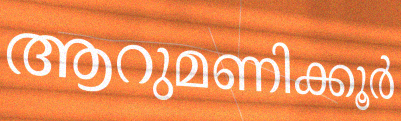
ആറുമണിക്കൂർ